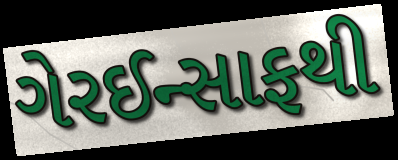
ગેરઈન્સાફથી